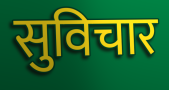
सुविचार